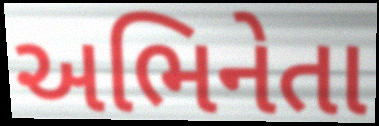
અભિનેતા